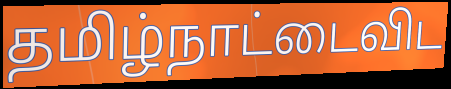
தமிழ்நாட்டைவிட